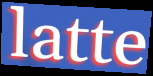
latte